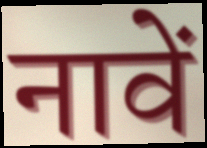
नावें